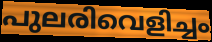
പുലരിവെളിച്ചം